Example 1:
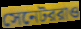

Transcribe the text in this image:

সেনেটররাও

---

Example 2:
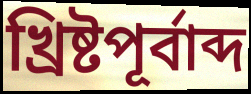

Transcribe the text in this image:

খ্রিষ্টপূর্বাব্দ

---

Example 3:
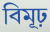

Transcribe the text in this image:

বিমূঢ়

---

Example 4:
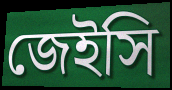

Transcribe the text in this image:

জেইসি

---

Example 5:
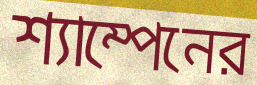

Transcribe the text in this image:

শ্যাম্পেনের